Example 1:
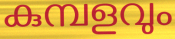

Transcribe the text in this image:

കുമ്പളവും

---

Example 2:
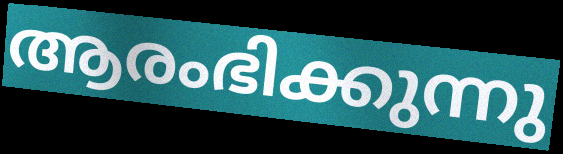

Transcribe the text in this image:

ആരംഭിക്കുന്നു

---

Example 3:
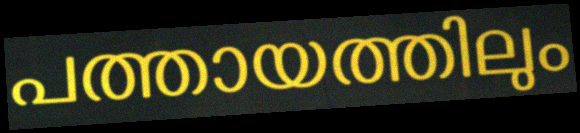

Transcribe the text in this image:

പത്തായത്തിലും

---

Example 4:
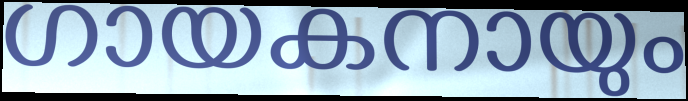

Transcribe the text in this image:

ഗായകനായും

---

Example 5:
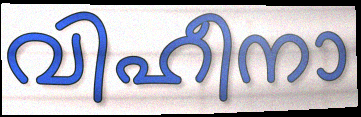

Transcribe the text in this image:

വിഹീനാ